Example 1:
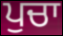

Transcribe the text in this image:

ਪੁਚਾ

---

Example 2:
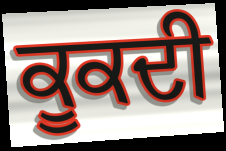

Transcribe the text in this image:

ਕੂਕਦੀ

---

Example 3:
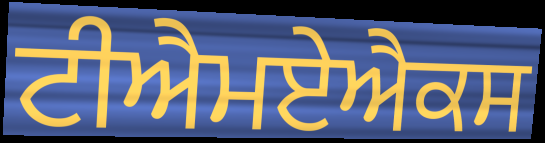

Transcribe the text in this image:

ਟੀਐਮਏਐਕਸ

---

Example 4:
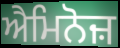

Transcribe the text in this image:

ਐਮਿਨੋਜ਼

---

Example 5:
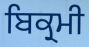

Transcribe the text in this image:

ਬਿਕ੍ਰਮੀ